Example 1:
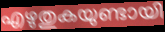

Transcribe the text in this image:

എഴുതുകയുണ്ടായി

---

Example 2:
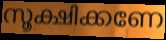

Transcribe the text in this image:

സൂക്ഷിക്കണേ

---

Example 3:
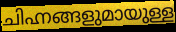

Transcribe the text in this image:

ചിഹ്നങ്ങളുമായുള്ള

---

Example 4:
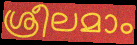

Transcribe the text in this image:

ശ്രീലമാം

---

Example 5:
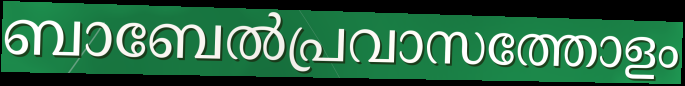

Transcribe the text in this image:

ബാബേൽപ്രവാസത്തോളം